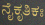
ನೈಕೃತಿಕಃ